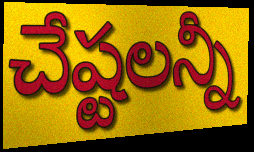
చేష్టలన్నీ